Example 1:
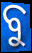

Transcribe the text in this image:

ବୁ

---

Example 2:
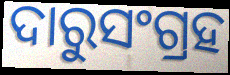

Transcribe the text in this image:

ଦାରୁସଂଗ୍ରହ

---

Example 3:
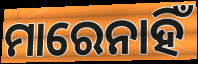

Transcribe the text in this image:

ମାରେନାହିଁ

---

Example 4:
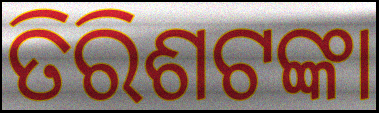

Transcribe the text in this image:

ତିରିଶଟଙ୍କା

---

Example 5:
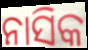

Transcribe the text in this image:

ନାସିକ